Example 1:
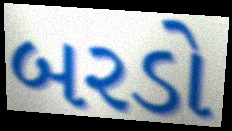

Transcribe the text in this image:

બરડો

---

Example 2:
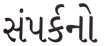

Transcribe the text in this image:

સંપર્કનો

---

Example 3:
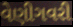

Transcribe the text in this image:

વેણીગવરી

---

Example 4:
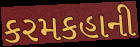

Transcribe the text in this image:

કરમકહાની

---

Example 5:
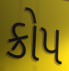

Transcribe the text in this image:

ક્રોપ